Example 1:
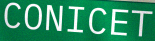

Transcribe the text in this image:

CONICET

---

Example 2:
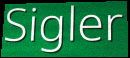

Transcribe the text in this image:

Sigler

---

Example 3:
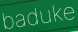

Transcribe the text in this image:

baduke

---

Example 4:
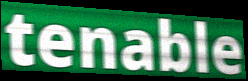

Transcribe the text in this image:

tenable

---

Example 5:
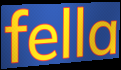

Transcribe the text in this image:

fella